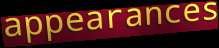
appearances